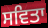
ਸਵਿਤਾ